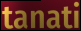
tanati